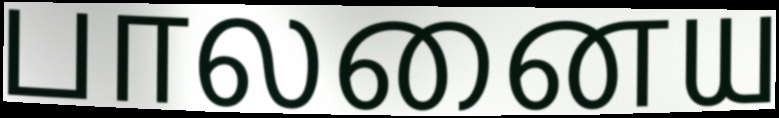
பாலனைய